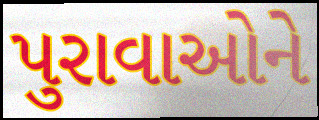
પુરાવાઓને